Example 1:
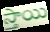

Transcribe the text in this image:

స్తాయి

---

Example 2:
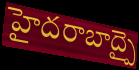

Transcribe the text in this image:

హైదరాబాద్పై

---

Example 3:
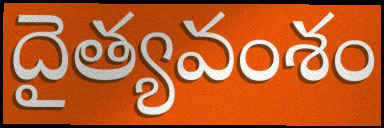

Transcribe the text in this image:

దైత్యవంశం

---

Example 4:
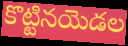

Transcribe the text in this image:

కొట్టినయెడల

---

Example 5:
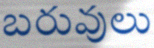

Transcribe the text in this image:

బరువులు